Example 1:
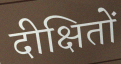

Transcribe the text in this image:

दीक्षितों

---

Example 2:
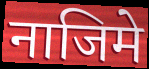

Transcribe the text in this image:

नाजिमे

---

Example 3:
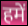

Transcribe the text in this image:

हमें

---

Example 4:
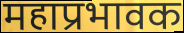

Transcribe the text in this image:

महाप्रभावक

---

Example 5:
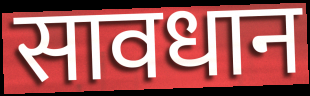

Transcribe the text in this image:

सावधान